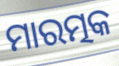
ମାରତ୍ମକ